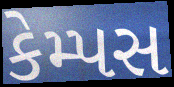
કેમ્પસ